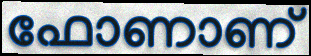
ഫോണാണ്